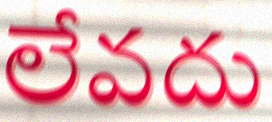
లేవదు